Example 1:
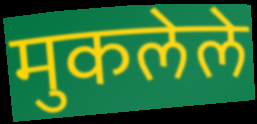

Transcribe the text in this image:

मुकलेले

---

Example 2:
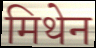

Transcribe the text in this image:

मिथेन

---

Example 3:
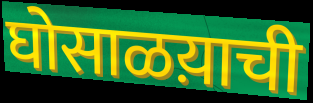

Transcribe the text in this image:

घोसाळय़ाची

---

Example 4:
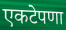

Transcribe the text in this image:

एकटेपणा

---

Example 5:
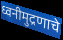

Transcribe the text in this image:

ध्वनीमुद्रणाचे